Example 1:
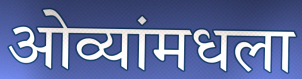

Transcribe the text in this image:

ओव्यांमधला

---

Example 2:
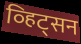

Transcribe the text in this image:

व्हिट्सन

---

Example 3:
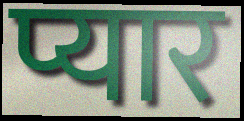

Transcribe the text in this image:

प्यार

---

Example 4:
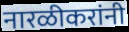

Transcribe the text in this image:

नारळीकरांनी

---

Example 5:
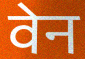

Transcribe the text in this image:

वेन